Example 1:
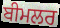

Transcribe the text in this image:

ਬੀਮਲਰ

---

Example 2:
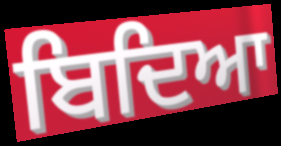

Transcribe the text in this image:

ਬਿਦਿਆ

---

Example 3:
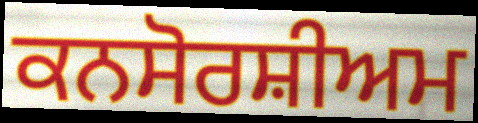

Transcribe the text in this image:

ਕਨਸੋਰਸ਼ੀਅਮ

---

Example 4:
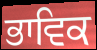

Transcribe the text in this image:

ਭਾਵਿਕ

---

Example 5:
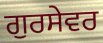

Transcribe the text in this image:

ਗੁਰਸੇਵਰ